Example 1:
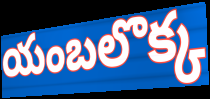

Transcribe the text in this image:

యంబలొక్క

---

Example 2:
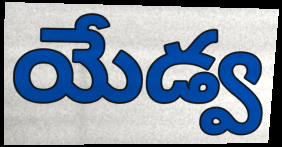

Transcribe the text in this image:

యేడ్వ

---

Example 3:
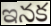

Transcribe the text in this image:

ఇనక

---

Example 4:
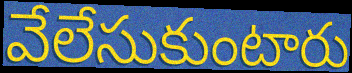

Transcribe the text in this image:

వేలేసుకుంటారు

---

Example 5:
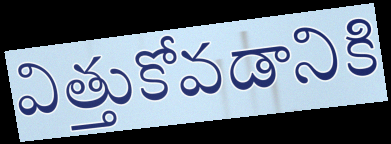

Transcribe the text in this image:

విత్తుకోవడానికి